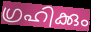
ഗ്രഹിക്കും